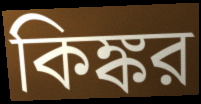
কিঙ্কর